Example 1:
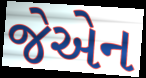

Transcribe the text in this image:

જેએન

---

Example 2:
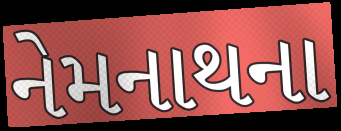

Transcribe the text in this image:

નેમનાથના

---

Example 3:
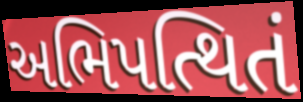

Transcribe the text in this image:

અભિપત્થિતં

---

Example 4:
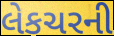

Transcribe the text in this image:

લેકચરની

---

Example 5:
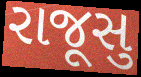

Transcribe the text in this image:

રાજૂસુ